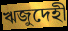
ঋজুদেহী